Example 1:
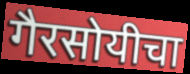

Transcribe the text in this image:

गैरसोयीचा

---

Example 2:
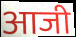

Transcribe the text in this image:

आजी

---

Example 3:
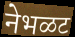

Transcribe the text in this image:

नेभळट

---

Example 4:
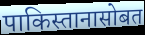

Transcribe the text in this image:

पाकिस्तानासोबत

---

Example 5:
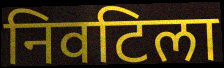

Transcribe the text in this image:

निवटिला